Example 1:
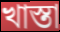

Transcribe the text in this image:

খাস্তা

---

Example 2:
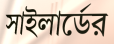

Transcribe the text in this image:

সাইলার্ডের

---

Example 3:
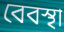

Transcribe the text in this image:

বেবস্থা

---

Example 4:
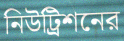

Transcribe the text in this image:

নিউট্রিশনের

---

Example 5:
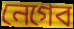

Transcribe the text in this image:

নেগেব